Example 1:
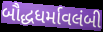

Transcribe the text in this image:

બૌદ્ધધર્માવલંબી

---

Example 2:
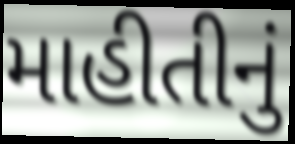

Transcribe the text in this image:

માહીતીનું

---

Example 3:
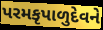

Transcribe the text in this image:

પરમકૃપાળુદેવને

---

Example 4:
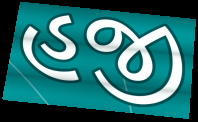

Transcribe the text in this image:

હજી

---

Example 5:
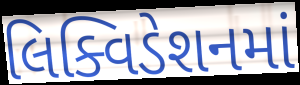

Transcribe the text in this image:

લિક્વિડેશનમાં